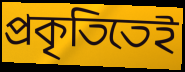
প্রকৃতিতেই